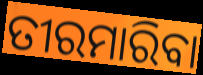
ତୀରମାରିବା